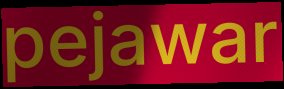
pejawar